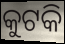
କୁଟକି